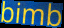
bimb